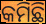
କମିଛି